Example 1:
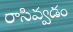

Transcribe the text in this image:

రాసివ్వడం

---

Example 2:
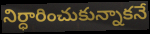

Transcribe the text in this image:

నిర్ధారించుకున్నాకనే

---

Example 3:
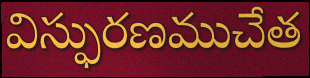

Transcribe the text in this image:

విస్ఫురణముచేత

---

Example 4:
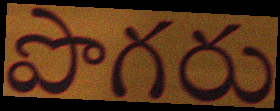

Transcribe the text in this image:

పొగరు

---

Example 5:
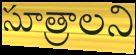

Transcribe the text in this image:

సూత్రాలని